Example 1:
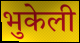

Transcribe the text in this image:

भुकेली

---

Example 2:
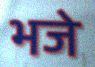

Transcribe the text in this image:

भजे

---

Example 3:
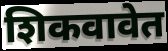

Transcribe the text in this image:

शिकवावेत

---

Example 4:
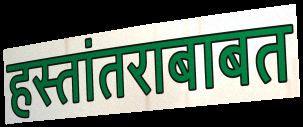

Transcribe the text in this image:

हस्तांतराबाबत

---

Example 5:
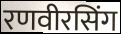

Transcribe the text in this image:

रणवीरसिंग